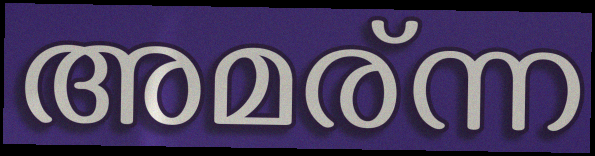
അമര്ന്ന